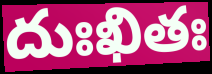
దుఃఖితః